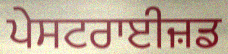
ਪੇਸਟਰਾਈਜ਼ਡ